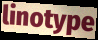
linotype